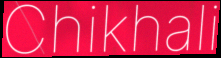
Chikhali